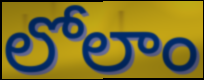
లోలాం